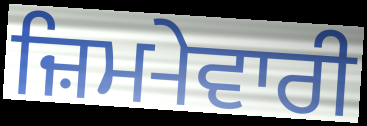
ਜ਼ਿਮ੍ਮੇਵਾਰੀ